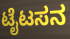
ಟೈಟಸನ